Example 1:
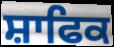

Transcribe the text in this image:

ਸ਼ਾਫਿਕ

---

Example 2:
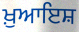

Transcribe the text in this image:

ਖ਼ੁਆਇਸ਼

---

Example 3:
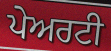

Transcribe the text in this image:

ਪੇਅਰਟੀ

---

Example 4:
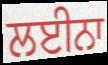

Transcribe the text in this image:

ਲਈਨਾ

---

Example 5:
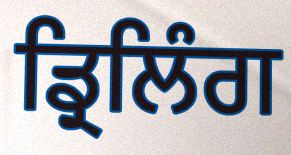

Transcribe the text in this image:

ਡ੍ਰਿਲਿੰਗ